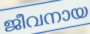
ജീവനായ